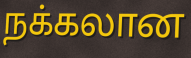
நக்கலான